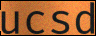
ucsd